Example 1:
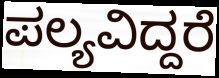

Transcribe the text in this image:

ಪಲ್ಯವಿದ್ದರೆ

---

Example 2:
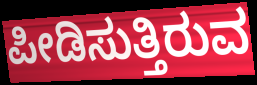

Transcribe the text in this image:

ಪೀಡಿಸುತ್ತಿರುವ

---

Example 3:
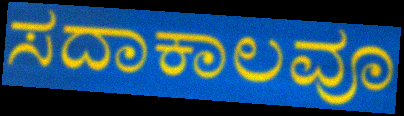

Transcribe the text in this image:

ಸದಾಕಾಲವೂ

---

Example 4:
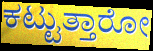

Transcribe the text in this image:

ಕಟ್ಟುತ್ತಾರೋ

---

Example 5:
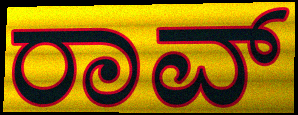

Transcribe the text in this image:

ರಾವ್